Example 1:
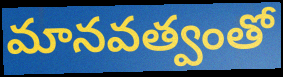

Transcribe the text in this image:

మానవత్వంతో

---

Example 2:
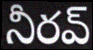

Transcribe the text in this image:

నీరవ్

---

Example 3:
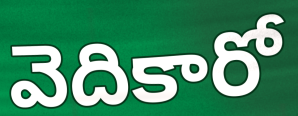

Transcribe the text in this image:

వెదికారో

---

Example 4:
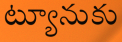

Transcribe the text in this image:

ట్యూనుకు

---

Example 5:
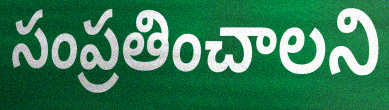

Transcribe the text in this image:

సంప్రతించాలని